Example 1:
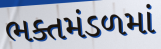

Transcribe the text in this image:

ભક્તમંડળમાં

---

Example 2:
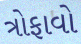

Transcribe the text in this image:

ત્રોફાવો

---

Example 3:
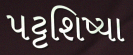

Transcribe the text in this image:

પટ્ટશિષ્યા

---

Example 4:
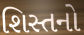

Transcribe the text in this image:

શિસ્તનો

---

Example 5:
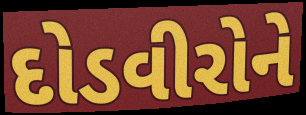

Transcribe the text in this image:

દોડવીરોને